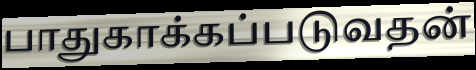
பாதுகாக்கப்படுவதன்